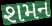
શમન